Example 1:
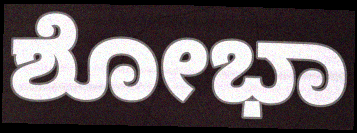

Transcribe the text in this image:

ಶೋಭಾ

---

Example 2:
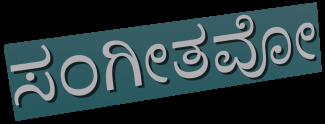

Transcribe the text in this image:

ಸಂಗೀತವೋ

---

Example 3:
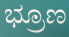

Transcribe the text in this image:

ಭ್ರೂಣ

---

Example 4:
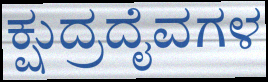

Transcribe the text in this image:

ಕ್ಷುದ್ರದೈವಗಳ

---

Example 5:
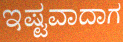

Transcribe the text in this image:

ಇಷ್ಟವಾದಾಗ